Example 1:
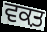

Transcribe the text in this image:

ਵਕ਼ਤ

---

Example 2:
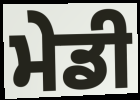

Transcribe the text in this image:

ਮੇਡੀ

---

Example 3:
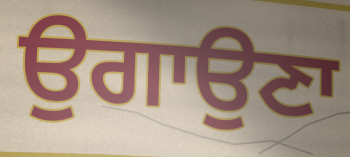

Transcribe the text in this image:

ਉਗਾਉਣਾ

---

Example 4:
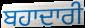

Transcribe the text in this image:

ਬਹਾਦਾਰੀ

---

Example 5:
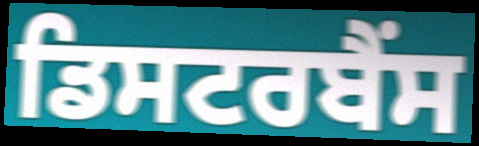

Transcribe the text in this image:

ਡਿਸਟਰਬੈਂਸ